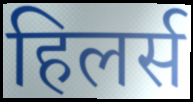
हिलर्स